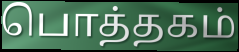
பொத்தகம்